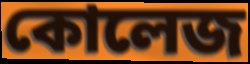
কোলেজ